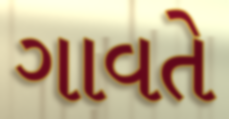
ગાવતે